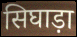
सिघाड़ा